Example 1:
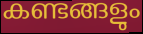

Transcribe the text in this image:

കണ്ടങ്ങളും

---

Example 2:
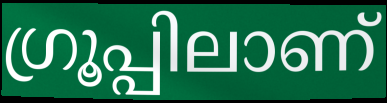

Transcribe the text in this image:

ഗ്രൂപ്പിലാണ്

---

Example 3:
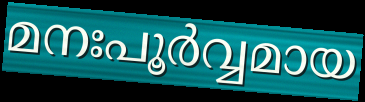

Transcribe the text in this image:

മനഃപൂർവ്വമായ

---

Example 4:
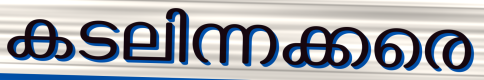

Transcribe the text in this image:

കടലിന്നക്കരെ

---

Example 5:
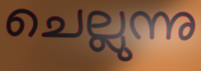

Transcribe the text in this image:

ചെല്ലുന്നു